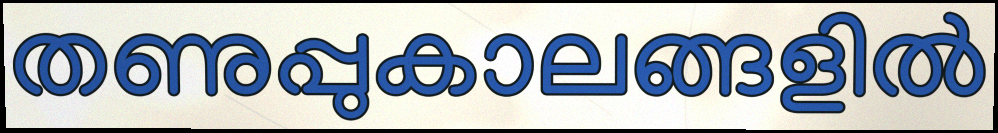
തണുപ്പുകാലങ്ങളിൽ